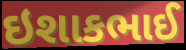
ઇશાકભાઈ